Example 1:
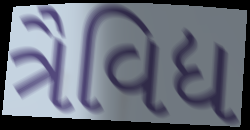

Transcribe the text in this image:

ત્રૈવિદ્ય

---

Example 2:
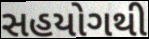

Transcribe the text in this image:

સહયોગથી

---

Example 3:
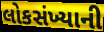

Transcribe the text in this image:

લોકસંખ્યાની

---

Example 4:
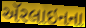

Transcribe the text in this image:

ઍરલાઇનના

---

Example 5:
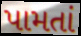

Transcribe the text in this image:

પામતાં